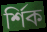
র্শিক